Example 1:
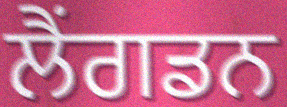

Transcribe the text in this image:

ਲੈਂਗਡਨ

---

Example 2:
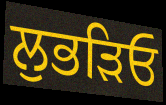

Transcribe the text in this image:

ਲੁਭੜਿਓ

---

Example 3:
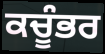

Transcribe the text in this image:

ਕਚੂੰਭਰ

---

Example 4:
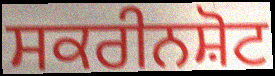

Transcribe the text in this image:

ਸਕਰੀਨਸ਼ੋਟ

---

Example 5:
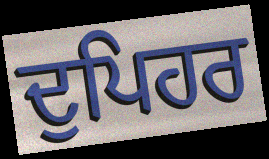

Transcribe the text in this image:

ਦੁਪਿਹਰ